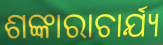
ଶଙ୍କାରାଚାର୍ଯ୍ୟ